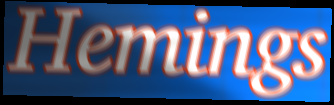
Hemings